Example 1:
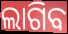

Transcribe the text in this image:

ଲାଗିବ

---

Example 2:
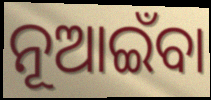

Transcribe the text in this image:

ନୂଆଇଁବା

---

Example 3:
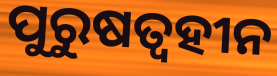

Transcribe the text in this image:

ପୁରୁଷତ୍ୱହୀନ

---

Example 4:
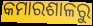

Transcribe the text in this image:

କମାରଶାଳରୁ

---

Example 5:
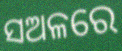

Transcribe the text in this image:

ସଅଳରେ